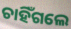
ଚାହିଁଗଲେ